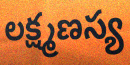
లక్ష్మణస్య